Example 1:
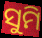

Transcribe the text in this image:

ସୁମି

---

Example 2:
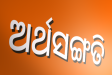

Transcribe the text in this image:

ଅର୍ଥସଙ୍ଗତି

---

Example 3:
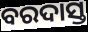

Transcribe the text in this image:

ବରଦାସ୍ତ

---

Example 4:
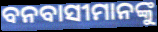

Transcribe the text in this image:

ବନବାସୀମାନଙ୍କୁ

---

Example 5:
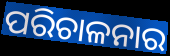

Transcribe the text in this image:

ପରିଚାଳନାର